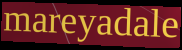
mareyadale